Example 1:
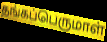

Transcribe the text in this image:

தங்கப்பெருமாள்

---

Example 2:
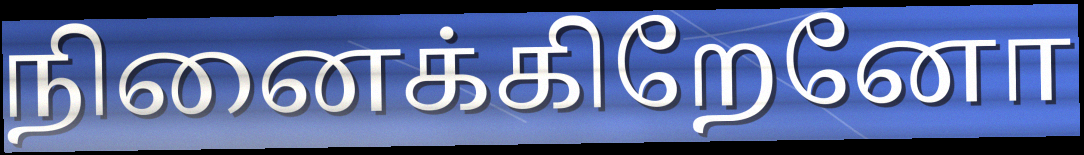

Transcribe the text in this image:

நினைக்கிறேனோ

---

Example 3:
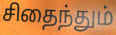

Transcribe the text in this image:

சிதைந்தும்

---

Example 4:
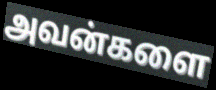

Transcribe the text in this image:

அவன்களை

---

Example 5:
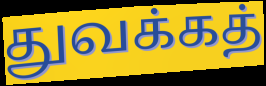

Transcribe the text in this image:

துவக்கத்